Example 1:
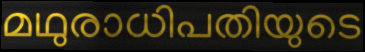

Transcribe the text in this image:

മഥുരാധിപതിയുടെ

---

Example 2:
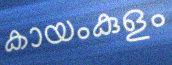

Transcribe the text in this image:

കായംകുളം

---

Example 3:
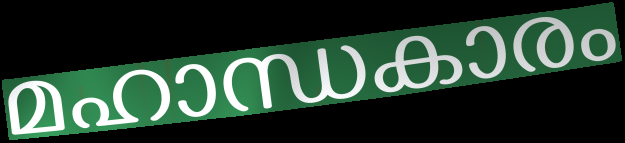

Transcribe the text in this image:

മഹാന്ധകാരം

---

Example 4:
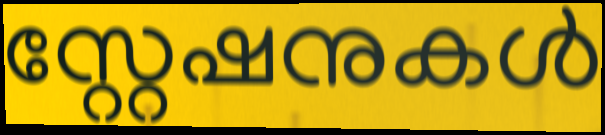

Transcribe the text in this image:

സ്റ്റേഷനുകൾ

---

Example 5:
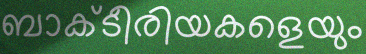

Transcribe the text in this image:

ബാക്ടീരിയകളെയും